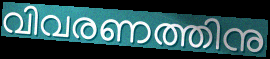
വിവരണത്തിനു